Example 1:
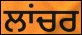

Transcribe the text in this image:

ਲਾਂਚਰ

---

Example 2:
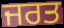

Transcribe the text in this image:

ਜਰਤ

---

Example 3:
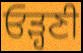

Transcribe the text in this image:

ਓੜ੍ਹਣੀ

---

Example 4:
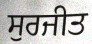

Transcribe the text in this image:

ਸੁਰਜੀਤ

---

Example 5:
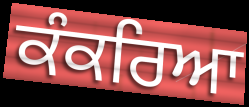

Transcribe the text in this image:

ਕੰਕਰਿਆ